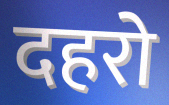
दहरो